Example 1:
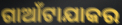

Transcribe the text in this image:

ଗାଆଁଟାଯାକର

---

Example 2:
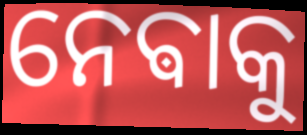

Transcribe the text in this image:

ନେଵାକୁ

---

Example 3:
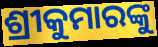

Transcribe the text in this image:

ଶ୍ରୀକୁମାରଙ୍କୁ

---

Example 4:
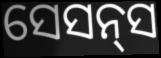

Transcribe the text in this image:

ସେସନ୍‌ସ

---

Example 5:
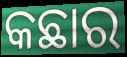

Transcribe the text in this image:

କଛାର